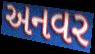
અનવર